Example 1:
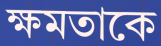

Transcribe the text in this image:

ক্ষমতাকে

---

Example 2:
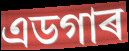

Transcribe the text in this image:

এডগাৰ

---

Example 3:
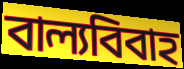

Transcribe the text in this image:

বাল্যবিবাহ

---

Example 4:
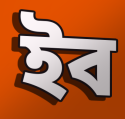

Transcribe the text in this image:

ইব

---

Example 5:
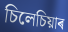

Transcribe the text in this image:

চিলেচিয়াৰ